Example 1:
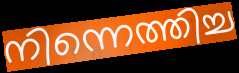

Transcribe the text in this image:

നിന്നെത്തിച്ച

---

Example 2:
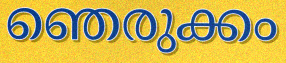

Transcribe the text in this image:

ഞെരുക്കം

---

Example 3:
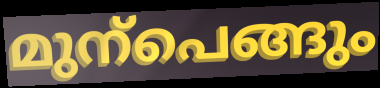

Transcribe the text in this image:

മുന്പെങ്ങും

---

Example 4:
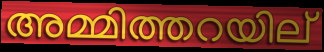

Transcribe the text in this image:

അമ്മിത്തറയില്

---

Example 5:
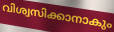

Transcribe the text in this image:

വിശ്വസിക്കാനാകും